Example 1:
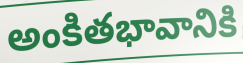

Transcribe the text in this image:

అంకితభావానికి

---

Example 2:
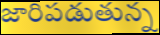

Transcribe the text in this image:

జారిపడుతున్న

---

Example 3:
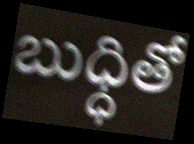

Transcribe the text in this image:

బుధ్ధితో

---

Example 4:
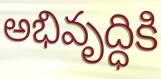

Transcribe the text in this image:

అభివృద్ధికి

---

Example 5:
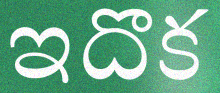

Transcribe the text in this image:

ఇదొక